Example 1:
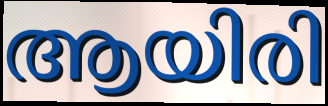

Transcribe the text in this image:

ആയിരി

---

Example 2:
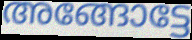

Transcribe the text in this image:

അങ്ങോട്ടേ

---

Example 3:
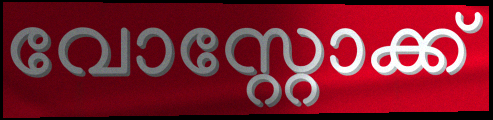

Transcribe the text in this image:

വോസ്റ്റോക്ക്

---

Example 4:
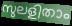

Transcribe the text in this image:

സുലളിതാം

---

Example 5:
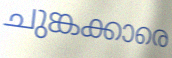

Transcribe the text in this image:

ചുങ്കക്കാരെ